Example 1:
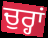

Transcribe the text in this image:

ਚੁਰ੍ਹਾਂ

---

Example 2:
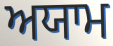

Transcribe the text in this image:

ਅਯਾਮ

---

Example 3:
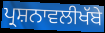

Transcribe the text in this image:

ਪ੍ਰਸ਼ਨਾਵਲੀਖੱਬੇ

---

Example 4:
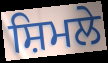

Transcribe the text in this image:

ਸ਼ਿਮਲੇ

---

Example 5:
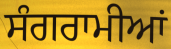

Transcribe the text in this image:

ਸੰਗਰਾਮੀਆਂ